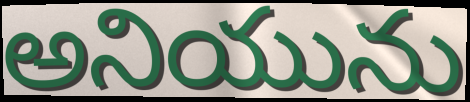
అనియును